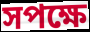
সপক্ষে